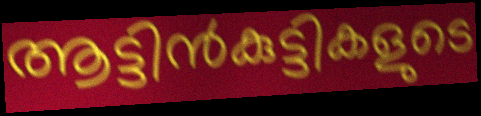
ആട്ടിൻകുട്ടികളുടെ